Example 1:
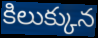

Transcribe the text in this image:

కిలుక్కున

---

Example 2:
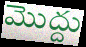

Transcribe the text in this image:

మొద్దు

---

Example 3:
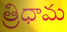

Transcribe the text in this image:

త్రిధామ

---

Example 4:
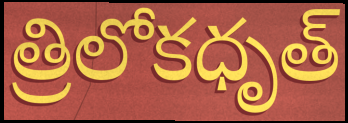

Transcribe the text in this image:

త్రిలోకధృత్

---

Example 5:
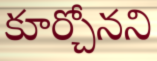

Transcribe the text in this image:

కూర్చోనని